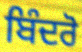
ਬਿੰਦਰੋ